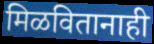
मिळवितानाही